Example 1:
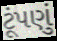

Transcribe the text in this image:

ટૂંપણું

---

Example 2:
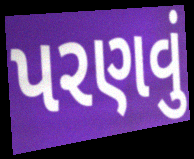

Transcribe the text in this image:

પરણવું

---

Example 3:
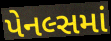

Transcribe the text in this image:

પેનલ્સમાં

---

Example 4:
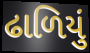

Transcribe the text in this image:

ઢાળિયું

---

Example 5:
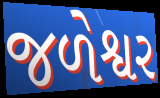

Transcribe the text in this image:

જળેશ્વર